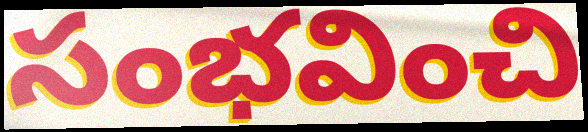
సంభవించి